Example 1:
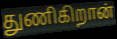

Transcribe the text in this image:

துணிகிறான்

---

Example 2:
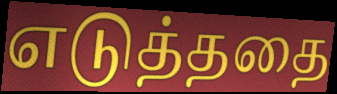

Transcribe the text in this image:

எடுத்ததை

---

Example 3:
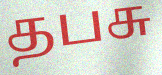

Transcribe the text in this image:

தபசு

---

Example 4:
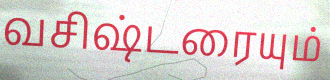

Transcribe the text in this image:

வசிஷ்டரையும்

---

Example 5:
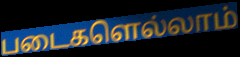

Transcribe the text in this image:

படைகளெல்லாம்